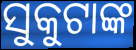
ସୁକୁଟାଙ୍କ